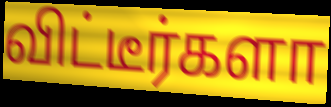
விட்டீர்களா